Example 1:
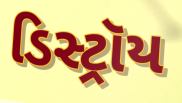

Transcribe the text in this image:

ડિસ્ટ્રૉય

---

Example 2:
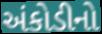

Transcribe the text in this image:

અંકોડીનો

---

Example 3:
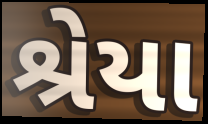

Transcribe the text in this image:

શ્રેયા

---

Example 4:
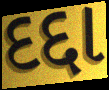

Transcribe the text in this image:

દદ્દા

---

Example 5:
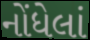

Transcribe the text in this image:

નોંધેલાં